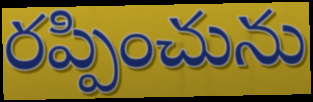
రప్పించును